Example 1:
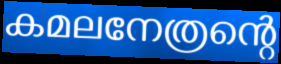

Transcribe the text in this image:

കമലനേത്രന്റെ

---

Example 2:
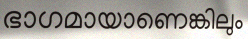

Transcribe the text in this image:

ഭാഗമായാണെങ്കിലും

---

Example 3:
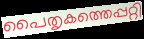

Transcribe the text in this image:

പൈതൃകത്തെപ്പറ്റി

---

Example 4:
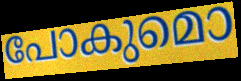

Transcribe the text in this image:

പോകുമൊ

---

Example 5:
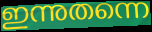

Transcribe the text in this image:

ഇന്നുതന്നെ